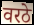
वरठे